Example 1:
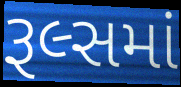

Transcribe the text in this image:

રૂલ્સમાં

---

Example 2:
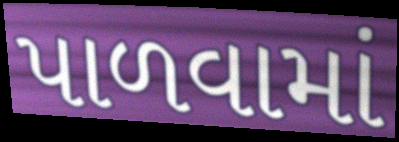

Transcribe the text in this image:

પાળવામાં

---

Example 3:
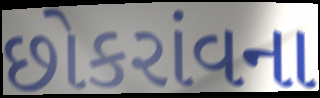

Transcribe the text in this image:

છોકરાંવના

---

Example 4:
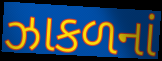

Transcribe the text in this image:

ઝાકળનાં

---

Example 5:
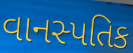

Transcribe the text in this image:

વાનસ્પતિક